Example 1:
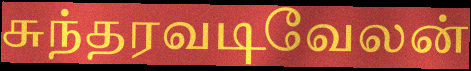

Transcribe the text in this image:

சுந்தரவடிவேலன்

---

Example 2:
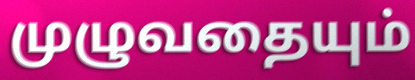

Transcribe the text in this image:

முழுவதையும்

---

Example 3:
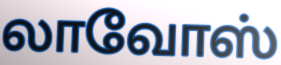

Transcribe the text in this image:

லாவோஸ்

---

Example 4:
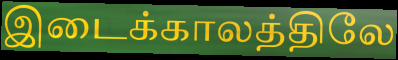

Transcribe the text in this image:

இடைக்காலத்திலே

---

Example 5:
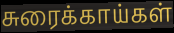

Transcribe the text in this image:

சுரைக்காய்கள்